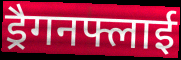
ड्रैगनफ्लाई